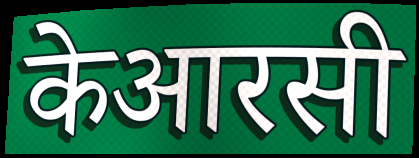
केआरसी